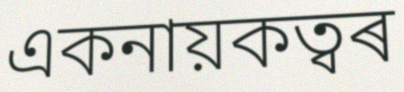
একনায়কত্বৰ